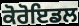
ਕੋਰੋਇਡਲ